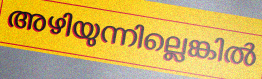
അഴിയുന്നില്ലെങ്കിൽ